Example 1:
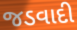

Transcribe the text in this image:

જડવાદી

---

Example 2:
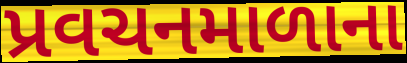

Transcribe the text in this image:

પ્રવચનમાળાના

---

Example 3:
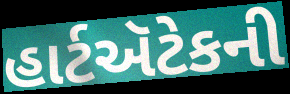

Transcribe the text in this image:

હાર્ટઍટેકની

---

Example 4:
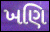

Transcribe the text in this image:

ખણિ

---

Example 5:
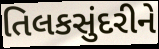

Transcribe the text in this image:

તિલકસુંદરીને